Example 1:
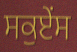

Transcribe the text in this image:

ਸਕੁਏਂਸ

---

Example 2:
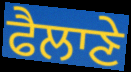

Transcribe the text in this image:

ਫੈਲਾਣੇ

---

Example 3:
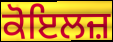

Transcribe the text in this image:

ਕੋਇਲਜ਼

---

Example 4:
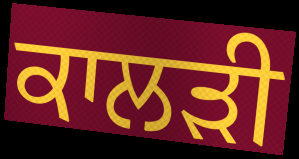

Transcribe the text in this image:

ਕਾਲੜੀ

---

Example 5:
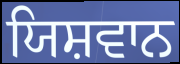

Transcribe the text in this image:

ਯਿਸ਼ਵਾਨ